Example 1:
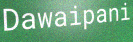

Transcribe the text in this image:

Dawaipani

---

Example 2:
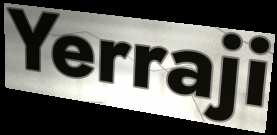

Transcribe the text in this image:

Yerraji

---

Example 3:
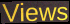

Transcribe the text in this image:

Views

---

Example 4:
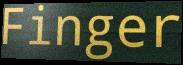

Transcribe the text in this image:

Finger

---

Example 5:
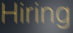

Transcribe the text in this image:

Hiring